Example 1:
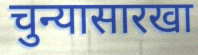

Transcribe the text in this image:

चुन्यासारखा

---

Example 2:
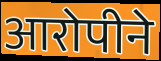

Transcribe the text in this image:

आरोपीने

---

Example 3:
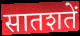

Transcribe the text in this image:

सातशतें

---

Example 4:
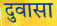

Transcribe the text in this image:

दुवासा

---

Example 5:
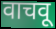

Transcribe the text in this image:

वाचवू